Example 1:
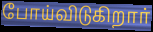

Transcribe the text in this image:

போய்விடுகிறார்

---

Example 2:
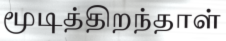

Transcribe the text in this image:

மூடித்திறந்தாள்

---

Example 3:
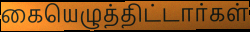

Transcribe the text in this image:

கையெழுத்திட்டார்கள்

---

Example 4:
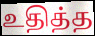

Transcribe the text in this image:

உதித்த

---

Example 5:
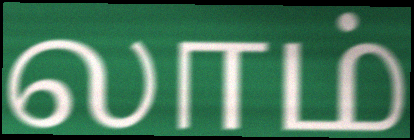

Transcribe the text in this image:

லாம்